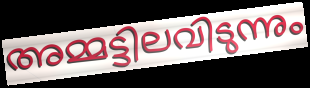
അമ്മട്ടിലവിടുന്നും